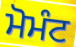
ਮੋਮੰਟ